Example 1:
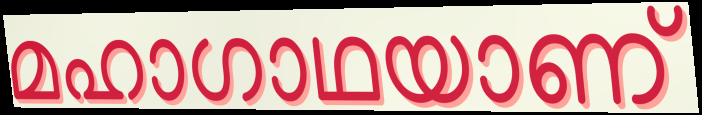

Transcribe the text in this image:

മഹാഗാഥയാണ്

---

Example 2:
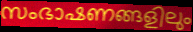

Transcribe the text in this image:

സംഭാഷണങ്ങളിലും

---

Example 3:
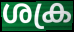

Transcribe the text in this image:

ശക്ര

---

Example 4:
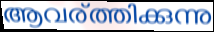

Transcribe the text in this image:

ആവര്ത്തിക്കുന്നു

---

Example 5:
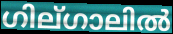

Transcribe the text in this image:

ഗില്ഗാലിൽ